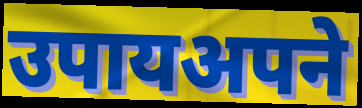
उपायअपने